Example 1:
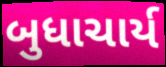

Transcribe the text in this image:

બુધાચાર્ય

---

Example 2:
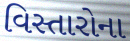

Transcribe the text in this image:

વિસ્તારોના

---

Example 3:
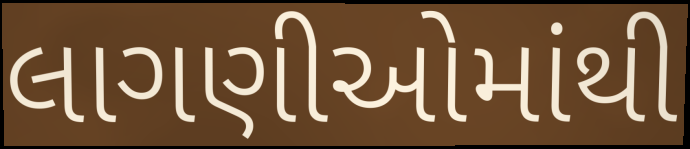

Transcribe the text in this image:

લાગણીઓમાંથી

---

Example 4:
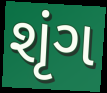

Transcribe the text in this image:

શૃંગ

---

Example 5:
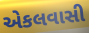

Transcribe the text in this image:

એકલવાસી